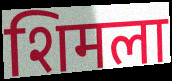
शिमला